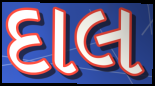
દાલ